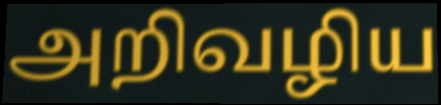
அறிவழிய